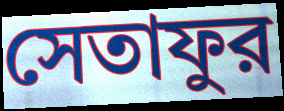
সেতাফুর